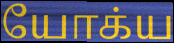
யோக்ய